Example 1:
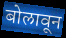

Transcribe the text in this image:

बोलावून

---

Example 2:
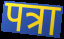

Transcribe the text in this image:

पत्रा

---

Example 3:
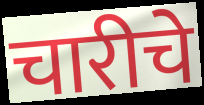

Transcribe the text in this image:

चारीचे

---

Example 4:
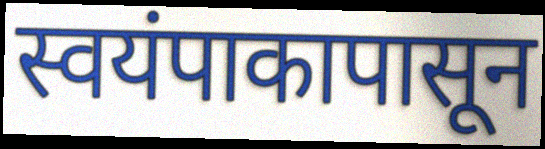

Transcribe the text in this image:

स्वयंपाकापासून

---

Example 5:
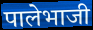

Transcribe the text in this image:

पालेभाजी